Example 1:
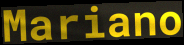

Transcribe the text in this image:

Mariano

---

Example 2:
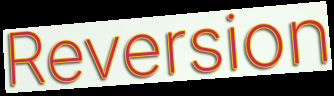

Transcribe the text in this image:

Reversion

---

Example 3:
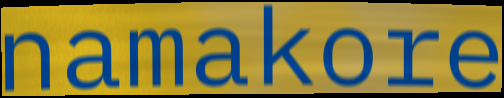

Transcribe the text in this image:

namakore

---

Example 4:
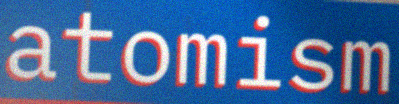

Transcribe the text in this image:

atomism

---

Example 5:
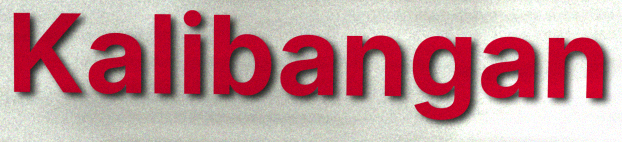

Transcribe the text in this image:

Kalibangan